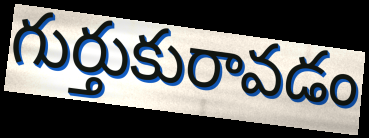
గుర్తుకురావడం